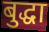
बुद्धा